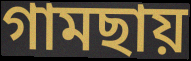
গামছায়